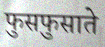
फुसफुसाते